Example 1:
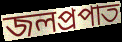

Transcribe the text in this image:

জলপ্রপাত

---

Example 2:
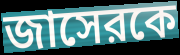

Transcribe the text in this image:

জাসেরকে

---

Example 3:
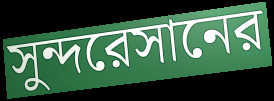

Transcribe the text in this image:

সুন্দরেসানের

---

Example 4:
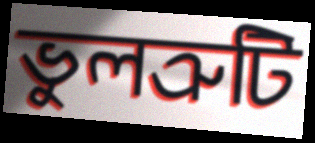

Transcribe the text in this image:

ভুলত্রুটি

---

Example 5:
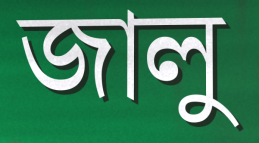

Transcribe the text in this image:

জালু